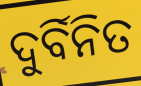
ଦୁର୍ବିନିତ